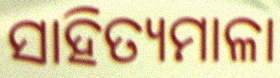
ସାହିତ୍ୟମାଳା